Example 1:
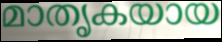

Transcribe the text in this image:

മാതൃകയായ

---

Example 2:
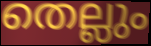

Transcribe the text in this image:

തെല്ലും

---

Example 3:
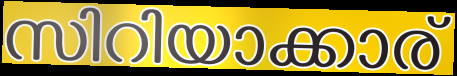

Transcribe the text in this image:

സിറിയാക്കാര്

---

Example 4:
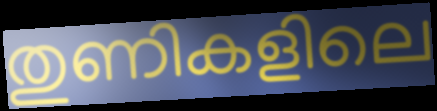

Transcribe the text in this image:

തുണികളിലെ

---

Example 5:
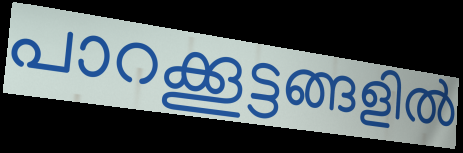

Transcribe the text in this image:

പാറക്കൂട്ടങ്ങളിൽ